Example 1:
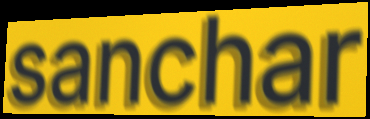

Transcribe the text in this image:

sanchar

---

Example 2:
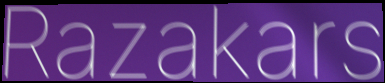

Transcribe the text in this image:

Razakars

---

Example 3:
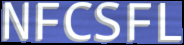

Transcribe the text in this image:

NFCSFL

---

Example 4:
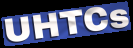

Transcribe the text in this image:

UHTCs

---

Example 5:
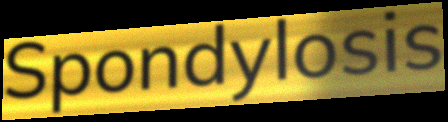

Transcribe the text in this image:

Spondylosis